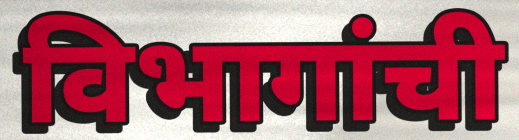
विभागांची